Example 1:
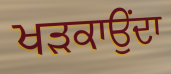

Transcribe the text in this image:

ਖੜਕਾਉਂਦਾ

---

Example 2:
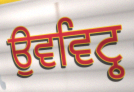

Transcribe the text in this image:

ਉਵਵਿਟ੍ਠ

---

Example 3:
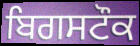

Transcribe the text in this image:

ਬਿਗਸਟੌਕ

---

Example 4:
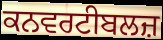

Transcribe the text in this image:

ਕਨਵਰਟੀਬਲਜ਼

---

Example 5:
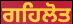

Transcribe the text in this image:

ਗਹਿਲੋਤ